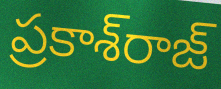
ప్రకాశ్‌రాజ్